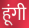
हूंगी